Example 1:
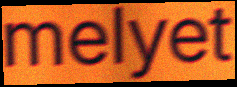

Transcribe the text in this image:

melyet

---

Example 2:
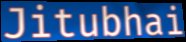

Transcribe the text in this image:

Jitubhai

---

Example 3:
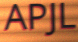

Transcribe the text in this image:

APJL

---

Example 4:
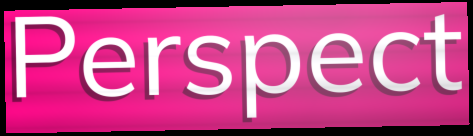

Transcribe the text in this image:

Perspect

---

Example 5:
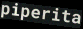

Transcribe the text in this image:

piperita